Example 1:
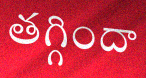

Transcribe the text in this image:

తగ్గిందా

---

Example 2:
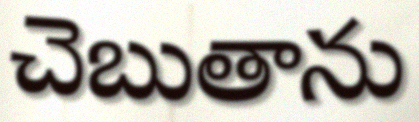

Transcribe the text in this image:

చెబుతాను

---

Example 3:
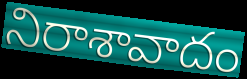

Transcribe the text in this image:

నిరాశావాదం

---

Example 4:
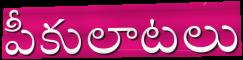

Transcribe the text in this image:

పీకులాటలు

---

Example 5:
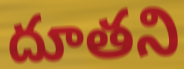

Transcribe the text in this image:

దూతని